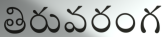
తిరువరంగ